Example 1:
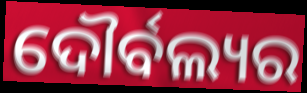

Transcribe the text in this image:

ଦୌର୍ବଲ୍ୟର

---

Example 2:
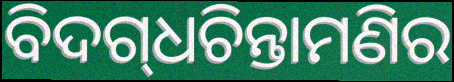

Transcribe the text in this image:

ବିଦଗ୍‌ଧଚିନ୍ତାମଣିର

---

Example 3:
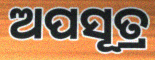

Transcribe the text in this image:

ଅପସୂତ୍ର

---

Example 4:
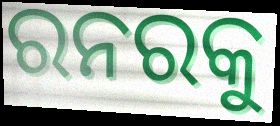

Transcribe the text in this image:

ରନରକୁ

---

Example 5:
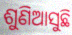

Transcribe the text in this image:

ଶୁଣିଆସୁଛି